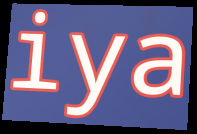
iya